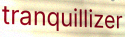
tranquillizer